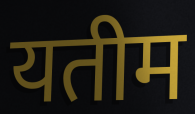
यतीम